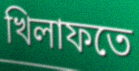
খিলাফতে